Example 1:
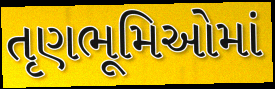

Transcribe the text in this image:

તૃણભૂમિઓમાં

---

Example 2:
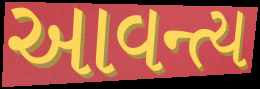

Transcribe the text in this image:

આવન્ત્ય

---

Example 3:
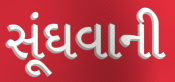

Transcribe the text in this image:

સૂંઘવાની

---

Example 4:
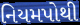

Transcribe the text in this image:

નિયમપોથી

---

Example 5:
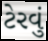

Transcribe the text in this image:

ટેરવું